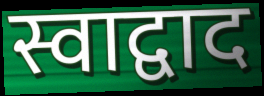
स्वाद्वाद